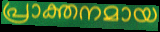
പ്രാക്തനമായ